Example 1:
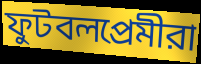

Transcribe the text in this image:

ফুটবলপ্রেমীরা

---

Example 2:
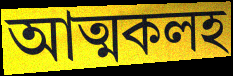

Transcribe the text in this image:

আত্মকলহ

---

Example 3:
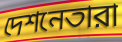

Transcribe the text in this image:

দেশনেতারা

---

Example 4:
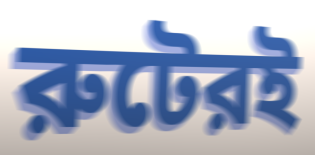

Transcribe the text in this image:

রুটেরই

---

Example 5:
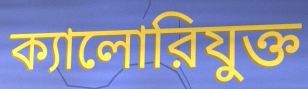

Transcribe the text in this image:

ক্যালোরিযুক্ত